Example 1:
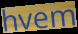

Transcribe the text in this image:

hvem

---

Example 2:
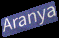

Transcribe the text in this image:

Aranya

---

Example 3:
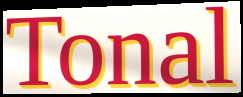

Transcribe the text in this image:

Tonal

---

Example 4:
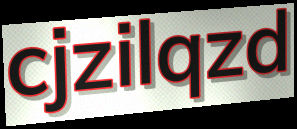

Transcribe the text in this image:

cjzilqzd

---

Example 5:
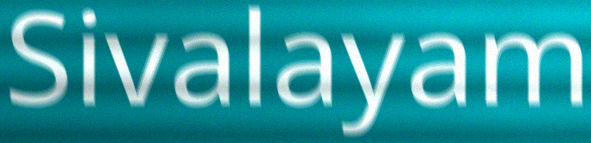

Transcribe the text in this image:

Sivalayam